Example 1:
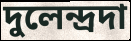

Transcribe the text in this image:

দুলেন্দ্রদা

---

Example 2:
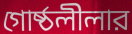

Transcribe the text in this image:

গোষ্ঠলীলার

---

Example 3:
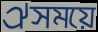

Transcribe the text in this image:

ঐসময়ে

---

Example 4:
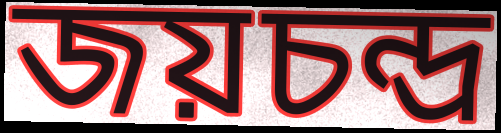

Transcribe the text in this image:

জয়চন্দ্র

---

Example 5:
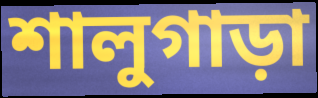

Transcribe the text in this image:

শালুগাড়া